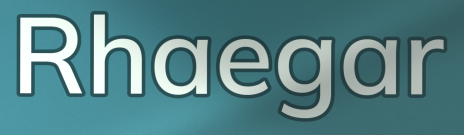
Rhaegar